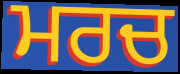
ਮਰਚ